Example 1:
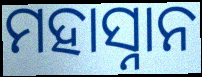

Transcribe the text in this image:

ମହାସ୍ନାନ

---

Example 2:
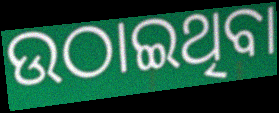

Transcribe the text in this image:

ଉଠାଇଥିବା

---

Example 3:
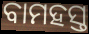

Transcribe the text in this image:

ବାମହସ୍ତ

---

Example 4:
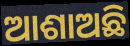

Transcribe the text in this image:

ଆଶାଅଛି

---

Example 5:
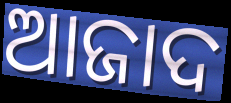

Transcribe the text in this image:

ଆଜାଦ